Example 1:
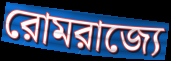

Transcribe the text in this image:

রোমরাজ্যে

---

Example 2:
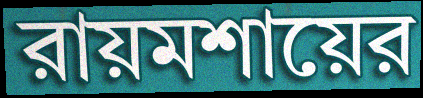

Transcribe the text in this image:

রায়মশায়ের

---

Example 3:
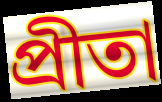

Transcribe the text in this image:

প্রীতা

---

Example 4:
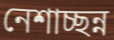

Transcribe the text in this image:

নেশাচ্ছন্ন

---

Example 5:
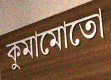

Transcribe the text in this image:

কুমামোতো